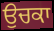
ਉਚਕਾ